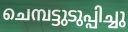
ചെമ്പട്ടുടുപ്പിച്ചു